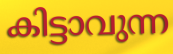
കിട്ടാവുന്ന